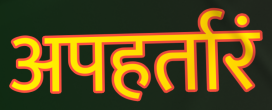
अपहर्तारं